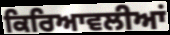
ਕਿਰਿਆਵਲੀਆਂ